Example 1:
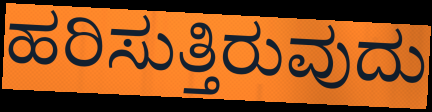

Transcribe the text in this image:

ಹರಿಸುತ್ತಿರುವುದು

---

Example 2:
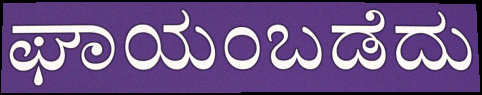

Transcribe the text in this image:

ಘಾಯಂಬಡೆದು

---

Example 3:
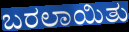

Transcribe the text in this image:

ಬರಲಾಯಿತು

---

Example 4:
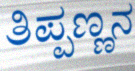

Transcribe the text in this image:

ತಿಪ್ಪಣ್ಣನ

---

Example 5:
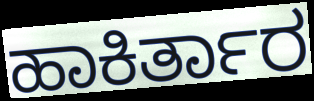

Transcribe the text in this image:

ಹಾಕಿರ್ತಾರ